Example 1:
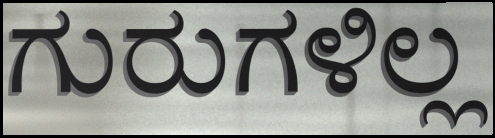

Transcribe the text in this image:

ಗುರುಗಳಿಲ್ಲ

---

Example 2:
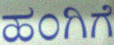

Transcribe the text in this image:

ಹಂಗಿಗೆ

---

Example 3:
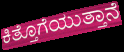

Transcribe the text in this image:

ಕಿತ್ತೊಗೆಯುತ್ತಾನೆ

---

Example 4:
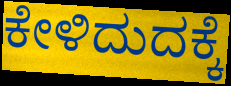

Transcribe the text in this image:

ಕೇಳಿದುದಕ್ಕೆ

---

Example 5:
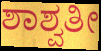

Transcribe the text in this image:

ಶಾಶ್ವತೀ